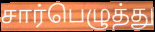
சார்பெழுத்து